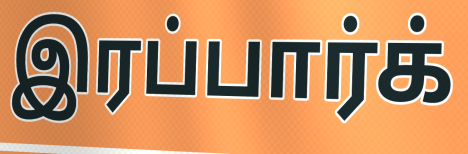
இரப்பார்க்